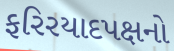
ફરિરયાદપક્ષનો